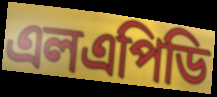
এলএপিডি